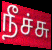
நீச்சு